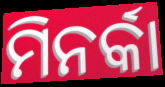
ମିନର୍କା